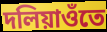
দলিয়াওঁতে